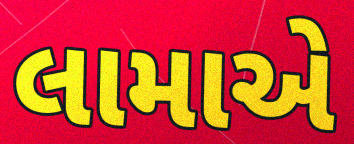
લામાએ